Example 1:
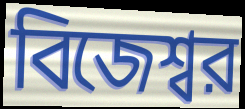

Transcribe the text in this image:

বিজেশ্বর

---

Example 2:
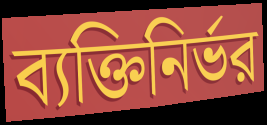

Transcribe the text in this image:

ব্যক্তিনির্ভর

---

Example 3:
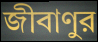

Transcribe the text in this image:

জীবাণুর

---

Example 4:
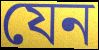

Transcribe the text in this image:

যেন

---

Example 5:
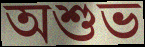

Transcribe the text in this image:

অশুভ